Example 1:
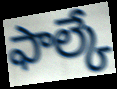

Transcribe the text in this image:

ఫాల్కే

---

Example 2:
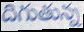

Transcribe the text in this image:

దిగుతున్న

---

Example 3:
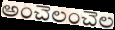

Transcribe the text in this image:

అంచెలంచెల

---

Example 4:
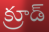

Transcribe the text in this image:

క్రూడ్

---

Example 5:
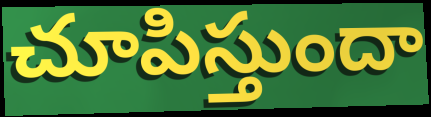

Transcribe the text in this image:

చూపిస్తుందా